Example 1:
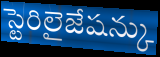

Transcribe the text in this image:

స్టెరిలైజేషన్కు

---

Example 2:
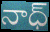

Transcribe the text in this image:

నాధ్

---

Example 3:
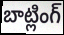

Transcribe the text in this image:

బాట్లింగ్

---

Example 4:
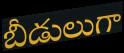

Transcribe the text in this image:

బీడులుగా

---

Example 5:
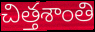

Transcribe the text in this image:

చిత్తశాంతి